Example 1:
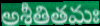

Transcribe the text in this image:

అశీతితమః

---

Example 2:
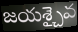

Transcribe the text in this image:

జయశ్చైవ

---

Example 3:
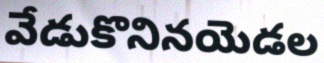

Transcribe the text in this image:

వేడుకొనినయెడల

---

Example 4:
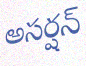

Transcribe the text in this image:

అసర్షన్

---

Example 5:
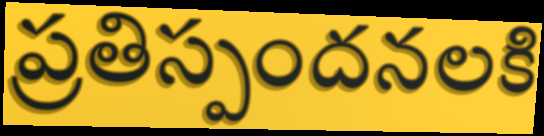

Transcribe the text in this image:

ప్రతిస్పందనలకి